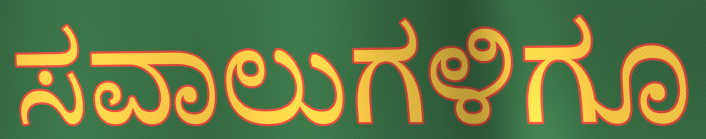
ಸವಾಲುಗಳಿಗೂ